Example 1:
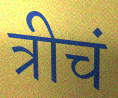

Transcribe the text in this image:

त्रीचं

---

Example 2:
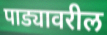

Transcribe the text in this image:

पाड्यावरील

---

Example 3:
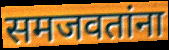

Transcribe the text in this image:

समजवतांना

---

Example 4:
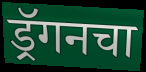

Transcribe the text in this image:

ड्रॅगनचा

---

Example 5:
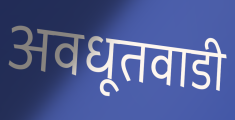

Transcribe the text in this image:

अवधूतवाडी